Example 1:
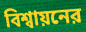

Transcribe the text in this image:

বিশ্বায়নের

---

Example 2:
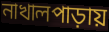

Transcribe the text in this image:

নাখালপাড়ায়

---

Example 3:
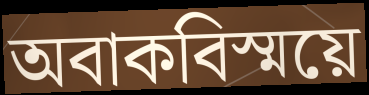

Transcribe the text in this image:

অবাকবিস্ময়ে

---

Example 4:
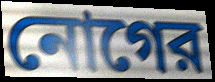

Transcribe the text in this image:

নোগের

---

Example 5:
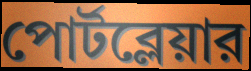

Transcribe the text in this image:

পোর্টব্লেয়ার